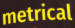
metrical